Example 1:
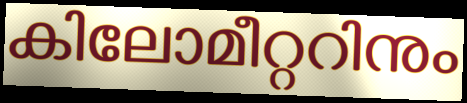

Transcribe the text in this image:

കിലോമീറ്ററിനും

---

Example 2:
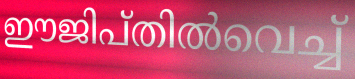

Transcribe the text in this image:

ഈജിപ്തിൽവെച്ച്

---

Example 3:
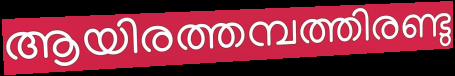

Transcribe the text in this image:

ആയിരത്തമ്പത്തിരണ്ടു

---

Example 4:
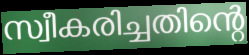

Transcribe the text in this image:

സ്വീകരിച്ചതിന്റെ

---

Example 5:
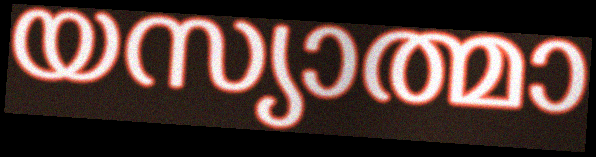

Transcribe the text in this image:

യസ്യാത്മാ